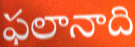
ఫలానాది